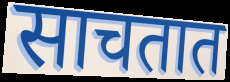
साचतात